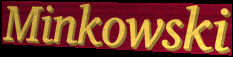
Minkowski